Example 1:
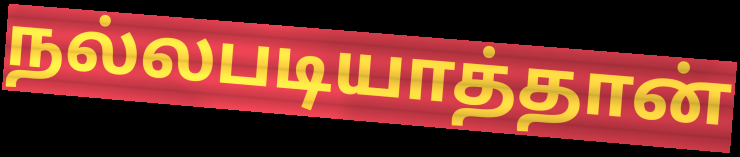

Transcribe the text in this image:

நல்லபடியாத்தான்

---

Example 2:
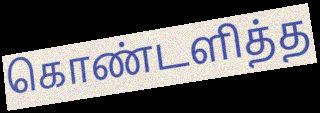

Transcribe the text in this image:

கொண்டளித்த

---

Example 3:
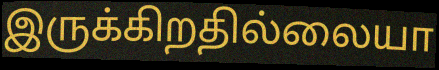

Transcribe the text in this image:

இருக்கிறதில்லையா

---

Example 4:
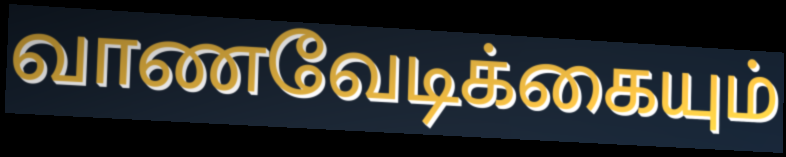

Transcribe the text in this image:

வாணவேடிக்கையும்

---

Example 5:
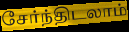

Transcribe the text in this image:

சேர்ந்திடலாம்